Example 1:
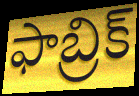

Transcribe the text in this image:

ఫాబ్రిక్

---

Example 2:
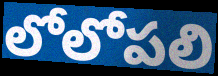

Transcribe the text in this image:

లోలోపలి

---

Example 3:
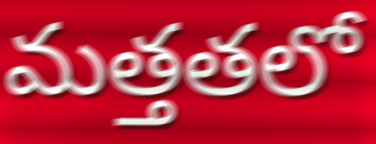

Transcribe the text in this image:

మత్తతలో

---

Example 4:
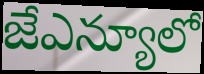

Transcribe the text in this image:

జేఎన్యూలో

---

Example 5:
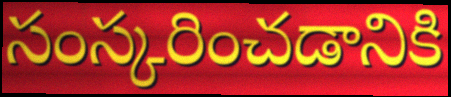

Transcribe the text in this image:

సంస్కరించడానికి